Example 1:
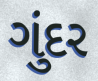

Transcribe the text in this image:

ગુંદર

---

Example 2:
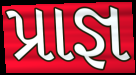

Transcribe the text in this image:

પ્રાજ્ઞ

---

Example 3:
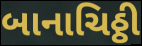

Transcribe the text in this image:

બાનાચિઠ્ઠી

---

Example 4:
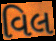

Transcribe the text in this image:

વિલ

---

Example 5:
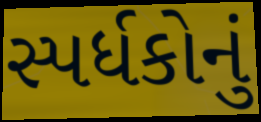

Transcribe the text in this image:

સ્પર્ધકોનું